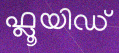
ഫ്ലൂയിഡ്